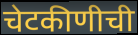
चेटकीणीची